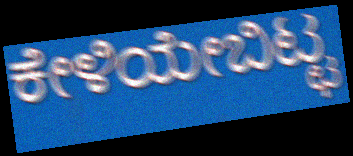
ಕೇಳಿಯೇಬಿಟ್ಟ